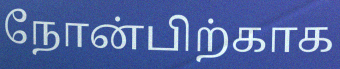
நோன்பிற்காக